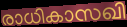
രാധികാസഖി